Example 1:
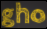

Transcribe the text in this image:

gho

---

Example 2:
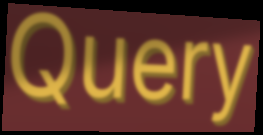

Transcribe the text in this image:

Query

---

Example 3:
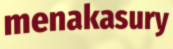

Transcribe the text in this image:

menakasury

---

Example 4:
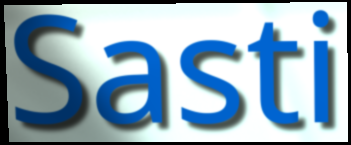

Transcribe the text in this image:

Sasti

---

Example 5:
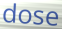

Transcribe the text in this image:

dose